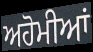
ਅਹੋਮੀਆਂ